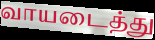
வாயடைத்து